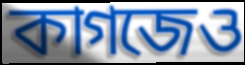
কাগজেও